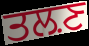
ਤਲ਼ਣ